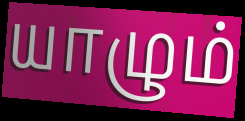
யாழும்